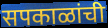
सपकाळांची